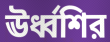
ঊর্ধ্বশির